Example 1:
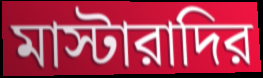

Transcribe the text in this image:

মাস্টারাদির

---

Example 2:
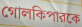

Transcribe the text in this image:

গোলকিপারকে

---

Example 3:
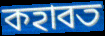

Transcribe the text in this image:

কহাবত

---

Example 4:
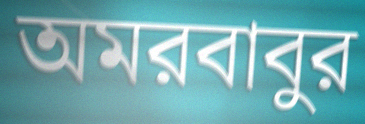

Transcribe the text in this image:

অমরবাবুর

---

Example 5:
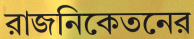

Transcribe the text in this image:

রাজনিকেতনের